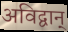
अविद्वान्